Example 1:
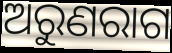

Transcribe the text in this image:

ଅରୁଣରାଗ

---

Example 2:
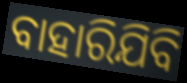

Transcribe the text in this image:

ବାହାରିଯିବି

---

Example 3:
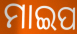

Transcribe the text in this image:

ମାଇପ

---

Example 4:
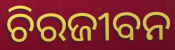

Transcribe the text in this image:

ଚିରଜୀବନ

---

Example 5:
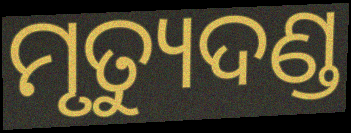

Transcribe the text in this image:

ମୃତ୍ୟୁଦଣ୍ଡ